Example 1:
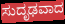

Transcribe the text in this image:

ಸುದೃಢವಾದ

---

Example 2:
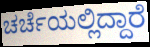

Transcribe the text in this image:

ಚರ್ಚೆಯಲ್ಲಿದ್ದಾರೆ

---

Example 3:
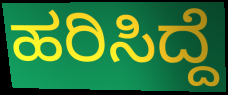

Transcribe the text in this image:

ಹರಿಸಿದ್ದೆ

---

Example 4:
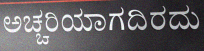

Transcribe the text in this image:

ಅಚ್ಚರಿಯಾಗದಿರದು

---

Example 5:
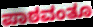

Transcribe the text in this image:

ಪಾಠವಂತೂ